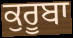
ਕੁਰੂਬਾ